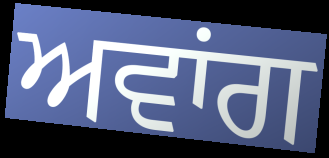
ਅਵਾਂਗ